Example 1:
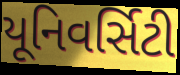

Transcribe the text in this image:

યૂનિવર્સિટી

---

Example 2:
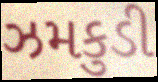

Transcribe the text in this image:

ઝમકુડી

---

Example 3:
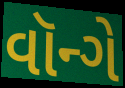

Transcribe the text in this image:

વૉન્ગે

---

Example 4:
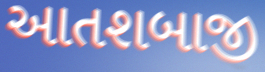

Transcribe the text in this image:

આતશબાજી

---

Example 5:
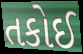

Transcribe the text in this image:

તકોઈ